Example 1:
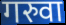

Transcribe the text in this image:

गरुवा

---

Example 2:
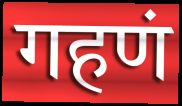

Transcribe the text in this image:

गहणं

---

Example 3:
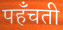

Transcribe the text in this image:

पहँचती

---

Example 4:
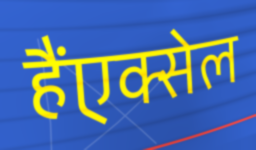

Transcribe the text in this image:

हैंएक्सेल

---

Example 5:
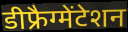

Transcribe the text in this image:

डीफ्रैग्मेंटेशन